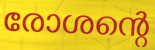
രോശന്റെ